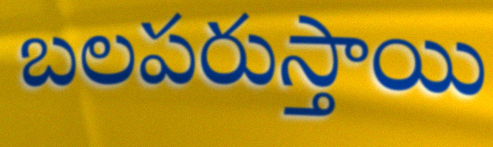
బలపరుస్తాయి